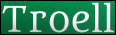
Troell